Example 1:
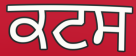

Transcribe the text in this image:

ਕਟਸ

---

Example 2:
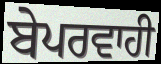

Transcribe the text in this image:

ਬੇਪਰਵਾਹੀ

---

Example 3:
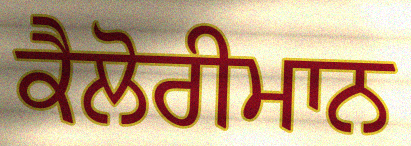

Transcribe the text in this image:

ਕੈਲੋਰੀਮਾਨ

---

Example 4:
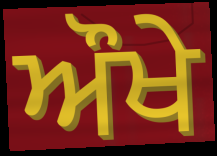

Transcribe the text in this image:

ਔਖੇ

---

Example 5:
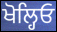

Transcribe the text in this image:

ਖੋਲ੍ਹ੍ਹਿਓ